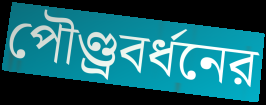
পৌণ্ড্রবর্ধনের